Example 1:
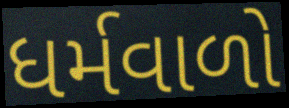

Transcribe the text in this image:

ધર્મવાળો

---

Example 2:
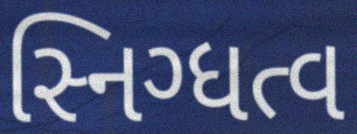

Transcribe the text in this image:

સ્નિગ્ધત્વ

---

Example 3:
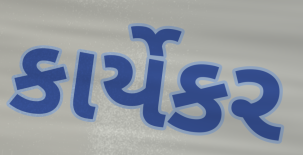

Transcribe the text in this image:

કાર્યેકર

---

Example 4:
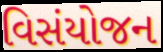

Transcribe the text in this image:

વિસંયોજન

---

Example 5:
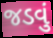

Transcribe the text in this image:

જડવું